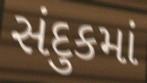
સંદુકમાં